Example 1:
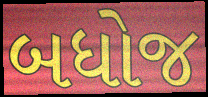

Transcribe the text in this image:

બધોજ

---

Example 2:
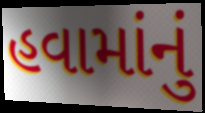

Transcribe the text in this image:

હવામાંનું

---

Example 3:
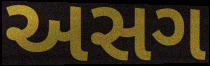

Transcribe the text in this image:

અસગ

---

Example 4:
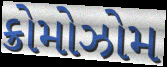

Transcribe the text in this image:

ક્રોમોઝોમ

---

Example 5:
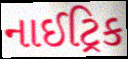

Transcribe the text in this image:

નાઈટ્રિક